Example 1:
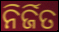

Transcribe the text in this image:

ନିର୍ଜିତ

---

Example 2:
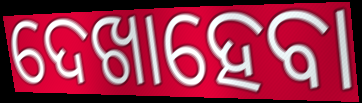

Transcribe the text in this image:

ଦେଖାହେବା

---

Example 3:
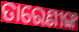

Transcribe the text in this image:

ତାରେଣୀଙ୍କ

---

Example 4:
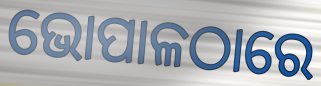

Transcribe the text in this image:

ଭୋପାଳଠାରେ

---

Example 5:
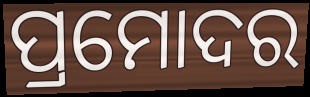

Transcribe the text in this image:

ପ୍ରମୋଦର